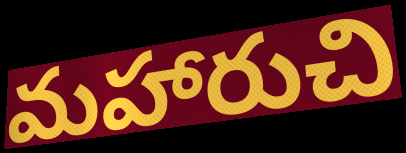
మహారుచి